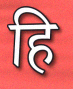
हि